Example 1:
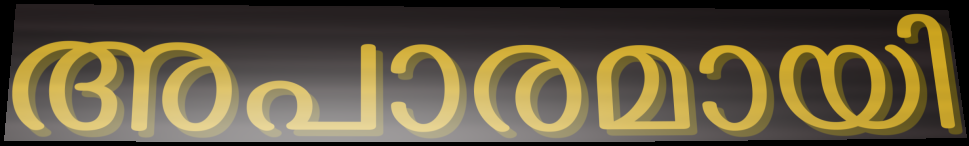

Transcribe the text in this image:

അപാരമായി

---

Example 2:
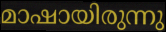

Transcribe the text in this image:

മാഷായിരുന്നു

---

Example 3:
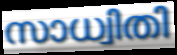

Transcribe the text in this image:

സാധ്വിതി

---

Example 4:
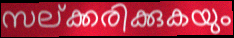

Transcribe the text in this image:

സല്ക്കരിക്കുകയും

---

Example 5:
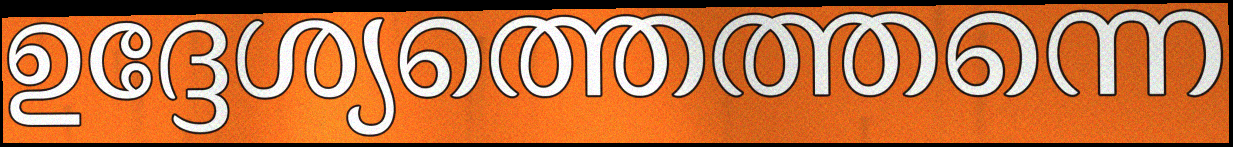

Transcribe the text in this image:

ഉദ്ദേശ്യത്തെത്തന്നെ